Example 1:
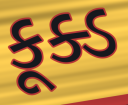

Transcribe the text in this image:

કૂક્ડ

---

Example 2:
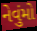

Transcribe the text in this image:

નેવુંમો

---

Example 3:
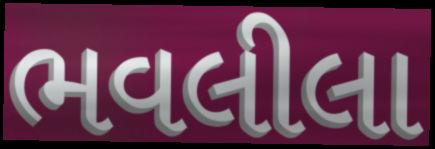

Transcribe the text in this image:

ભવલીલા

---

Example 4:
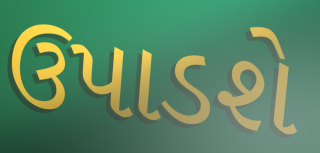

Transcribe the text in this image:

ઉપાડશે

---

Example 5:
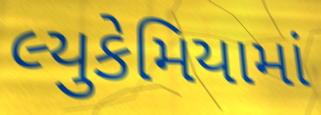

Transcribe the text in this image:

લ્યુકેમિયામાં